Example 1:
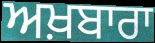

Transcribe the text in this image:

ਅਖ਼ਬਾਰਾ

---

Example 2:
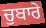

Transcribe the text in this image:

ਚੁਬਾਰੇ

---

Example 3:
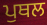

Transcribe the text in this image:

ਪੁਥਲ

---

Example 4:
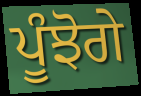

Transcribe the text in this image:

ਪੂੰਝੋਗੇ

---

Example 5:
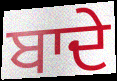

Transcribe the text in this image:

ਬਾਦੇ